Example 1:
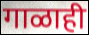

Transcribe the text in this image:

गाळाही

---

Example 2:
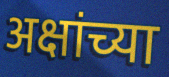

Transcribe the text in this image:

अक्षांच्या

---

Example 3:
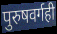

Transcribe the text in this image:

पुरुषवर्गही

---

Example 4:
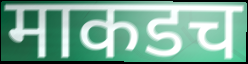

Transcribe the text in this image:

माकडच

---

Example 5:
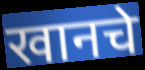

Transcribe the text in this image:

खानचे